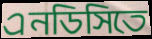
এনডিসিতে